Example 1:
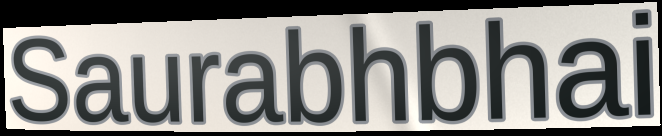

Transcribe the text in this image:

Saurabhbhai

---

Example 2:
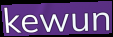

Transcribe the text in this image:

kewun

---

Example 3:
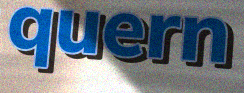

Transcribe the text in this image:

quern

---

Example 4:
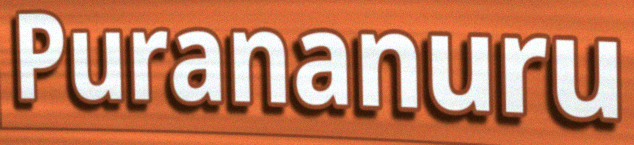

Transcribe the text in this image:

Purananuru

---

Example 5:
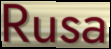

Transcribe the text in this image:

Rusa